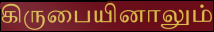
கிருபையினாலும்